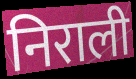
निराली